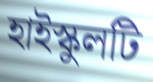
হাইস্কুলটি